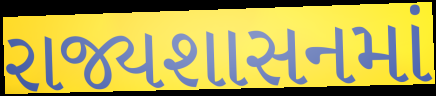
રાજ્યશાસનમાં